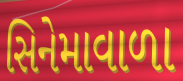
સિનેમાવાળા